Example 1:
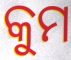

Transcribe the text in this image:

କୁମ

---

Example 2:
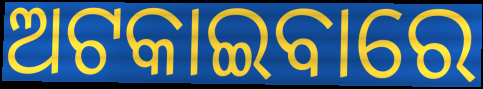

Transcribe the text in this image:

ଅଟକାଇବାରେ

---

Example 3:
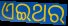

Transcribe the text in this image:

ଏଇଥର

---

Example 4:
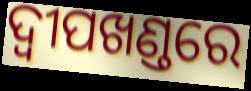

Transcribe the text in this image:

ଦ୍ଵୀପଖଣ୍ଡରେ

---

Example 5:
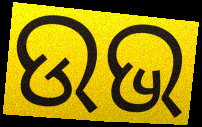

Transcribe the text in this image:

ଉଭ